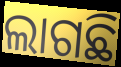
ଲାଗଛି